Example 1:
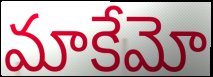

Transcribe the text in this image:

మాకేమో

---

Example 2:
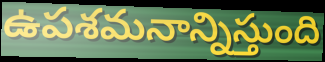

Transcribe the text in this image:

ఉపశమనాన్నిస్తుంది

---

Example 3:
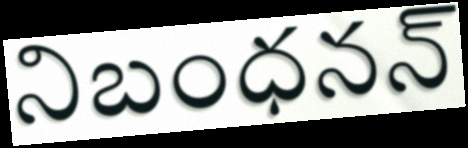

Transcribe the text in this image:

నిబంధనన్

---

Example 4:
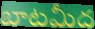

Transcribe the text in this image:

బాటమీద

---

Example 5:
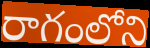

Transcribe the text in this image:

రాగంలోని